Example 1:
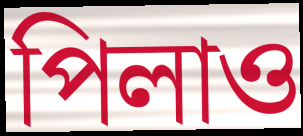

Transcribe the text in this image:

পিলাও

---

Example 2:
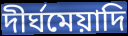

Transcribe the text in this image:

দীর্ঘমেয়াদি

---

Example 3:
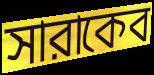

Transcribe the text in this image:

সারাকেব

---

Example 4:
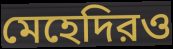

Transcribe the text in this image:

মেহেদিরও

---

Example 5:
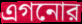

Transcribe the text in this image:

এগনোর